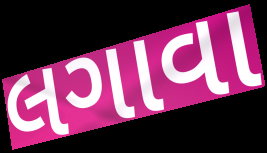
લગાવા